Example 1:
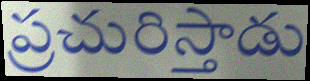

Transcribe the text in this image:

ప్రచురిస్తాడు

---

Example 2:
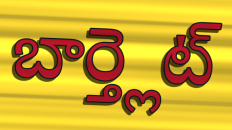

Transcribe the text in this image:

బార్త్లెట్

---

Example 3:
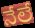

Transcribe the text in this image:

నేలే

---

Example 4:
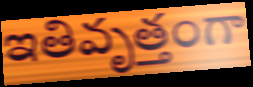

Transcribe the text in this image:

ఇతివృత్తంగా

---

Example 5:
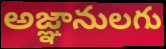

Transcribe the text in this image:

అజ్ఞానులగు